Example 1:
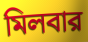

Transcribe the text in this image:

মিলবার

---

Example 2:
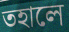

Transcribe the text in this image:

তহালে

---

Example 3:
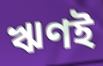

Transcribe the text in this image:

ঋণই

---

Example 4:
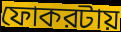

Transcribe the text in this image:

ফোকরটায়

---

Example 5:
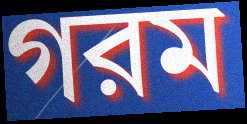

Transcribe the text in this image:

গরম